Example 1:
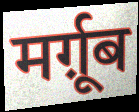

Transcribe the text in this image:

मर्ग़ूब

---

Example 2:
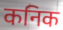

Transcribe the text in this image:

कनिक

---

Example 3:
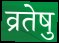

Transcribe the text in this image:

व्रतेषु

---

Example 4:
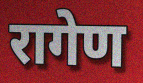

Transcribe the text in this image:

रागेण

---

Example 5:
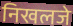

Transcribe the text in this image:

निखलजे